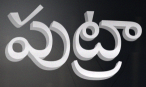
పుట్రా